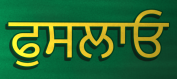
ਫੁਸਲਾਓ